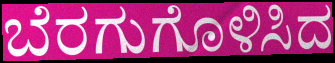
ಬೆರಗುಗೊಳಿಸಿದ